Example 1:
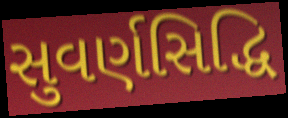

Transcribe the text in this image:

સુવર્ણસિદ્ધિ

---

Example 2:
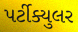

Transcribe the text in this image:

પર્ટીક્યુલર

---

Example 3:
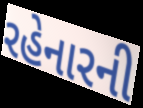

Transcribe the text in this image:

રહેનારની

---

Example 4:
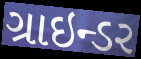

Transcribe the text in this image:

ગ્રાઇન્ડર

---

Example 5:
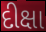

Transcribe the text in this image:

દીક્ષા